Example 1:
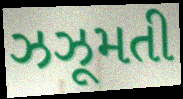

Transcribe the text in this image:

ઝઝૂમતી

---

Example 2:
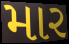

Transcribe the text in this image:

માર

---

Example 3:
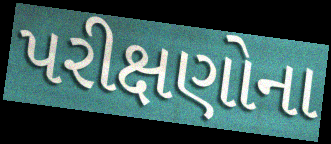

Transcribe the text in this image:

પરીક્ષણોના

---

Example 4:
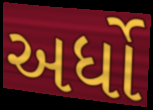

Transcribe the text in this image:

અર્ધો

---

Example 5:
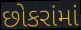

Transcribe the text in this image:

છોકરાંમાં